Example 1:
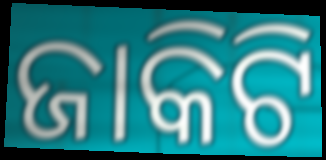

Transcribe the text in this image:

ଜାକିଟି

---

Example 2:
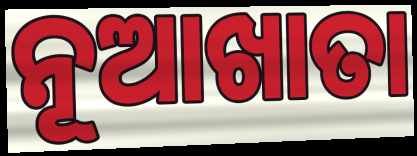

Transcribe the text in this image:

ନୂଆଖାତା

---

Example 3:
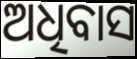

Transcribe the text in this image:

ଅଧିବାସ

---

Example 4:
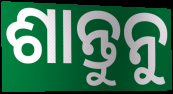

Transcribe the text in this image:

ଶାନ୍ତୁନୁ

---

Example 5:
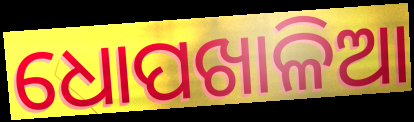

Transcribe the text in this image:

ଧୋପଖାଳିଆ